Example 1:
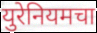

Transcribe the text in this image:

युरेनियमचा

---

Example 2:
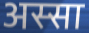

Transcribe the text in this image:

अस्सा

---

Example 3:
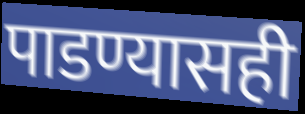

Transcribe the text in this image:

पाडण्यासही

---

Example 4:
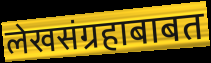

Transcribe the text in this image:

लेखसंग्रहाबाबत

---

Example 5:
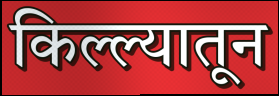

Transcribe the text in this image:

किल्ल्यातून